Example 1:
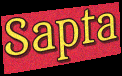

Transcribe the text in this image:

Sapta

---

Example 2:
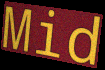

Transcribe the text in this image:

Mid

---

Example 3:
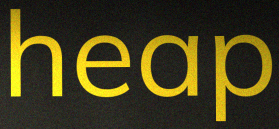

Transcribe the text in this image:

heap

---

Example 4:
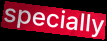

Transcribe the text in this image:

specially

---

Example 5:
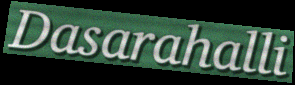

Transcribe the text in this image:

Dasarahalli